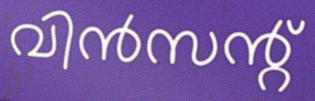
വിൻസന്റ്